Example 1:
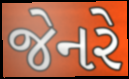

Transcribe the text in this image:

જેનરે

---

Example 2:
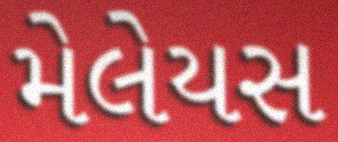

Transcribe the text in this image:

મેલેયસ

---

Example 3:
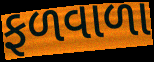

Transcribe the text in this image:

ફળવાળા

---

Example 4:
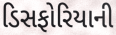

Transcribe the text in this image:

ડિસફોરિયાની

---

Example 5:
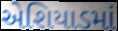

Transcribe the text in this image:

એશિયાડમાં